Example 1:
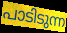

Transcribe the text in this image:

പാടിടുന്ന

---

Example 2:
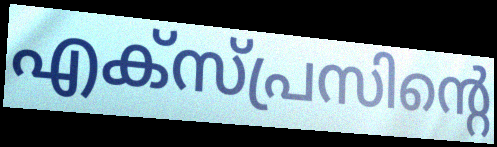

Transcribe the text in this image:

എക്സ്പ്രസിന്റെ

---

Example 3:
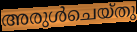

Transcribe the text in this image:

അരുൾചെയ്തു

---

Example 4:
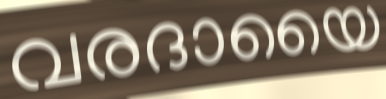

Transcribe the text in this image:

വരദായൈ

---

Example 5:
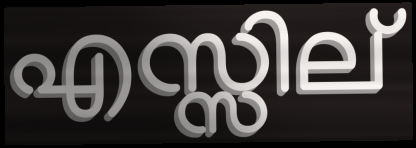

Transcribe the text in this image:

എസ്സില്